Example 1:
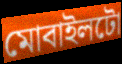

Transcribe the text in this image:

মোবাইলটো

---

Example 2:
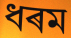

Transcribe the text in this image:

ধৰম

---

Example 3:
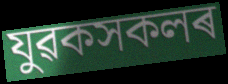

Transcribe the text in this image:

যুৱকসকলৰ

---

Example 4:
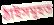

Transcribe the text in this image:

ঠাইসমূহত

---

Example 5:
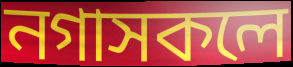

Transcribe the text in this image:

নগাসকলে